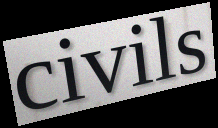
civils